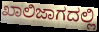
ಖಾಲಿಜಾಗದಲ್ಲಿ